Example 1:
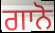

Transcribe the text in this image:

ਗਾਨੋ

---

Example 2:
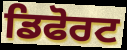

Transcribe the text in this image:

ਡਿਫੋਰਟ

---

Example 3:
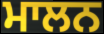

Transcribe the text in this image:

ਮਾਲਨ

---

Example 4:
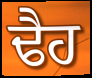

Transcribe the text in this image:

ਢੈਹ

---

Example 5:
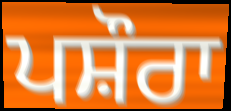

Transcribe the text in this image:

ਪਸ਼ੌਰਾ